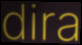
dira